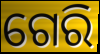
ଗେରି